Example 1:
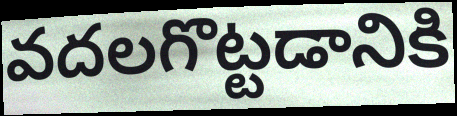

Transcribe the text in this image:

వదలగొట్టడానికి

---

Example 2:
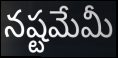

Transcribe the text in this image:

నష్టమేమీ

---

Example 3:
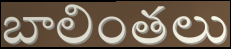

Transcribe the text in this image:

బాలింతలు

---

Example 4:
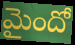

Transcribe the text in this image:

మైందో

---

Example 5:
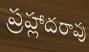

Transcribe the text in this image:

ప్రహ్లాదరావు